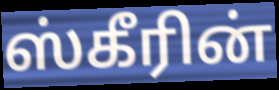
ஸ்கீரின்